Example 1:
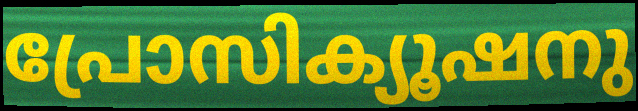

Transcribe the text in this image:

പ്രോസിക്യൂഷനു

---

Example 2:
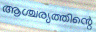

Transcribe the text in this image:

ആശ്ചര്യത്തിന്റെ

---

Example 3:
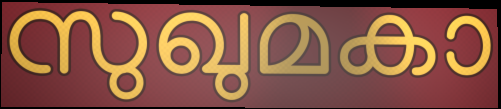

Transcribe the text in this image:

സുഖുമകാ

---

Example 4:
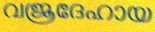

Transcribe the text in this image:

വജ്രദേഹായ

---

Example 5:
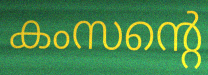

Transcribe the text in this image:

കംസന്റെ